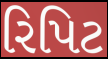
રિપિટ